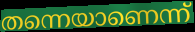
തന്നെയാണെന്ന്